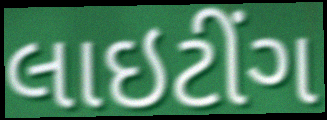
લાઇટીંગ